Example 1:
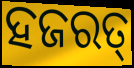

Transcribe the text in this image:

ହଜରତ୍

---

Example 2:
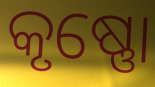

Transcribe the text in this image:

କୃଷ୍ଣୋ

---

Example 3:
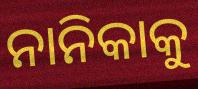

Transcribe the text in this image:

ନାନିକାକୁ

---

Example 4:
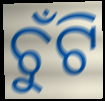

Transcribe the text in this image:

ଚୁଁଟି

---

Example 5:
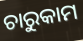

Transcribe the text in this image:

ଚାରୁକାମ